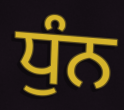
ਧੁੰਨ